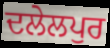
ਦਲੇਲਪੁਰ